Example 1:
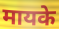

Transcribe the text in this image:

मायके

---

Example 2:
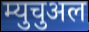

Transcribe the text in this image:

म्युचुअल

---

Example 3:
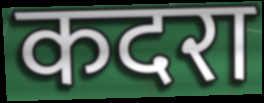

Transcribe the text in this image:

कदरा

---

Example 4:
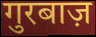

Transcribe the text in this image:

गुरबाज़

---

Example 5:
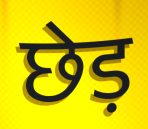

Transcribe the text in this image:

छेड़